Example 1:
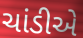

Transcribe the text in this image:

ચાંડીએ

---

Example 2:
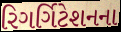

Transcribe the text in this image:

રિગર્ગિટેશનના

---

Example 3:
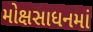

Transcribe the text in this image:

મોક્ષસાધનમાં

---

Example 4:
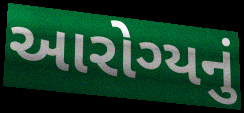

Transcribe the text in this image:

આરોગ્યનું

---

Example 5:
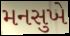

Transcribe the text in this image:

મનસુખે